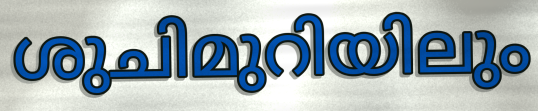
ശുചിമുറിയിലും